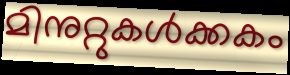
മിനുറ്റുകൾക്കകം